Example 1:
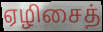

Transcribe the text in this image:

ஏழிசைத்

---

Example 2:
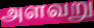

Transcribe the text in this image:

அளவறு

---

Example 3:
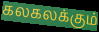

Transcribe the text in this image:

கலகலக்கும்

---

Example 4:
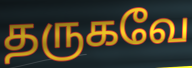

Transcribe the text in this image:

தருகவே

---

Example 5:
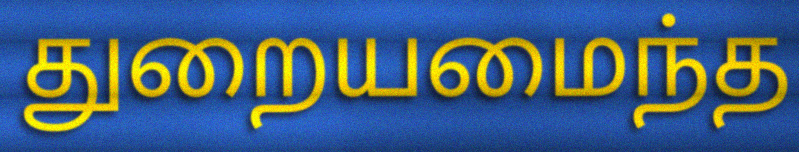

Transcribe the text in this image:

துறையமைந்த